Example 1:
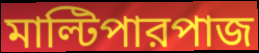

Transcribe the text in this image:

মাল্টিপারপাজ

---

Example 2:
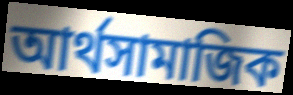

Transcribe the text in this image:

আর্থসামাজিক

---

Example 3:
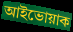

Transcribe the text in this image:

আইভোয়াক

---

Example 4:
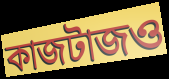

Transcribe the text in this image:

কাজটাজও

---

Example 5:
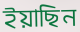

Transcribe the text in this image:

ইয়াছিন